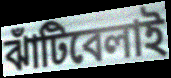
ঝাঁটিবেলাই